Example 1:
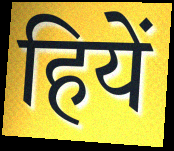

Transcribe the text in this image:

हियें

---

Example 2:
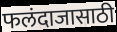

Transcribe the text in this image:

फलंदाजासाठी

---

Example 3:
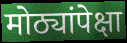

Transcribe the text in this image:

मोठ्यांपेक्षा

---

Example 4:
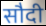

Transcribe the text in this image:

सौदी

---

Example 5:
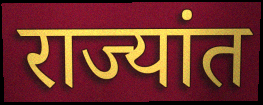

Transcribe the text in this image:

राज्यांत